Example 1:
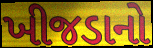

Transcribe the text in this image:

ખીજડાનો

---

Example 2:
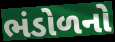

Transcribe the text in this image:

ભંડોળનો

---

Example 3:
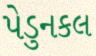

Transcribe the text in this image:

પેડુનકલ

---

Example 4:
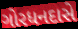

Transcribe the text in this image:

ગોરધનદાસે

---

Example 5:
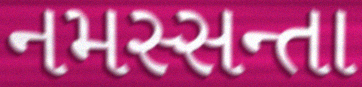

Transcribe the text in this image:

નમસ્સન્તા